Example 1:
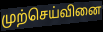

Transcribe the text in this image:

முற்செய்வினை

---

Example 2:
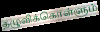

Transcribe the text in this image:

தழுவிக்கொள்ளும்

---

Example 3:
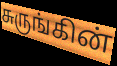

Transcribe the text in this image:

சுருங்கின்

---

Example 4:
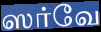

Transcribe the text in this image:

ஸர்வே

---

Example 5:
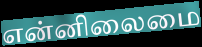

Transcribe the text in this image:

என்னிலைமை